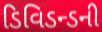
ડિવિડન્ડની